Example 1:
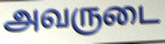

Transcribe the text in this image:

அவருடை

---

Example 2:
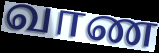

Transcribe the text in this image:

வாண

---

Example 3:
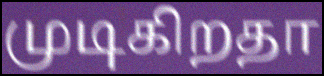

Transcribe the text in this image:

முடிகிறதா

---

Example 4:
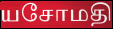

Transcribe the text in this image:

யசோமதி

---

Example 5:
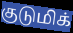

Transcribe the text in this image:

குடுமிக்